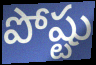
పోష్టు